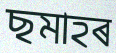
ছমাহৰ